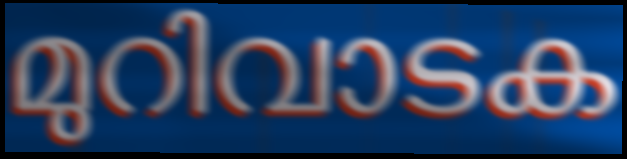
മുറിവാടക